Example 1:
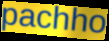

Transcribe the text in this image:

pachho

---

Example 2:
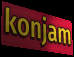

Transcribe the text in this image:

konjam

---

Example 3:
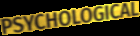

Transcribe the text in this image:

PSYCHOLOGICAL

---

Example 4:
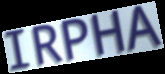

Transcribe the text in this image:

IRPHA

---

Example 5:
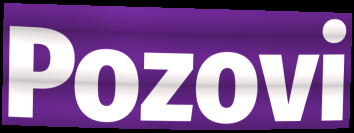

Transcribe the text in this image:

Pozovi